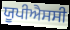
ਯੂਪੀਐਸਸੀ